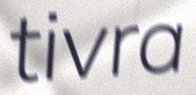
tivra